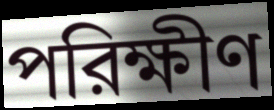
পরিক্ষীণ